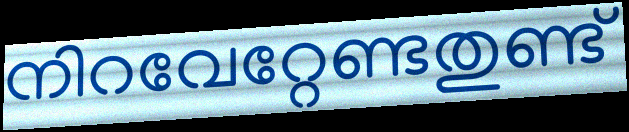
നിറവേറ്റേണ്ടതുണ്ട്